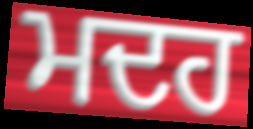
ਮਦਹ